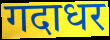
गदाधर